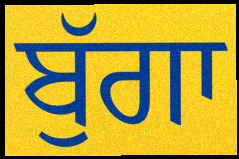
ਬੁੱਗਾ